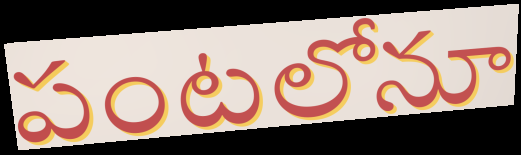
పంటలోనూ